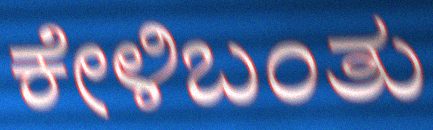
ಕೇಳಿಬಂತು